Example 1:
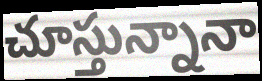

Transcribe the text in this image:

చూస్తున్నానా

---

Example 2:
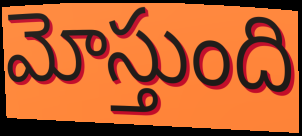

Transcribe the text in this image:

మోస్తుంది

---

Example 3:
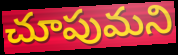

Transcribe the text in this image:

చూపుమని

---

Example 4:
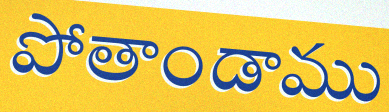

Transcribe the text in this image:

పోతాండాము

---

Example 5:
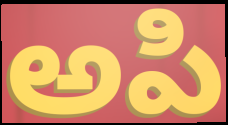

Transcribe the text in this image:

అపి